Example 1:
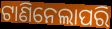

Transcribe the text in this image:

ଟାଣିନେଲାପରି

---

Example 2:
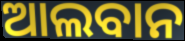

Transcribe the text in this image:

ଆଲବାନ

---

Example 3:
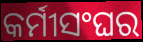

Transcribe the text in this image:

କର୍ମୀସଂଘର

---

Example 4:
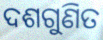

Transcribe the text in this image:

ଦଶଗୁଣିତ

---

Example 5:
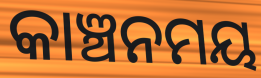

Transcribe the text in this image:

କାଞ୍ଚନମୟ